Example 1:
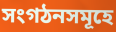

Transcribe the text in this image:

সংগঠনসমূহে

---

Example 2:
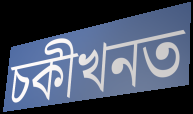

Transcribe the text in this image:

চকীখনত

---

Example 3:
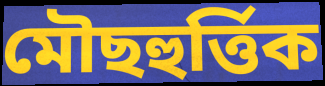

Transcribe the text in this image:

মৌছহুৰ্ত্তিক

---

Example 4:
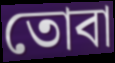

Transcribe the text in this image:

তোবা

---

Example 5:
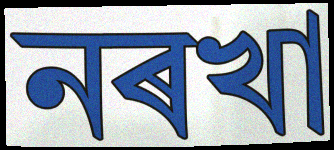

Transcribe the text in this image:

নৰখা